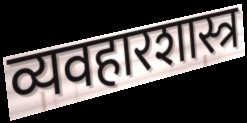
व्यवहारशास्त्र